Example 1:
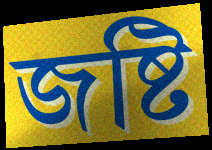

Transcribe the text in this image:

জষ্টি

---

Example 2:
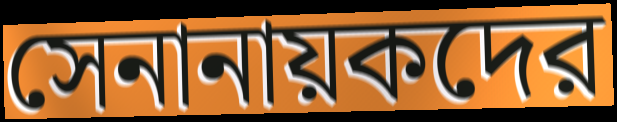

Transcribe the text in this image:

সেনানায়কদের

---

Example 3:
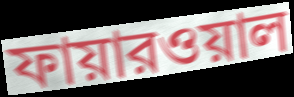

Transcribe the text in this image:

ফায়ারওয়াল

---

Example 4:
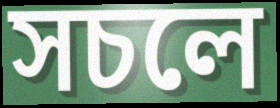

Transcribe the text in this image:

সচলে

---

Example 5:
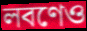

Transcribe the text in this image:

লবণেও